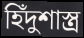
হিঁদুশাস্ত্র